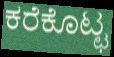
ಕರೆಕೊಟ್ಟ